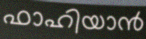
ഫാഹിയാൻ